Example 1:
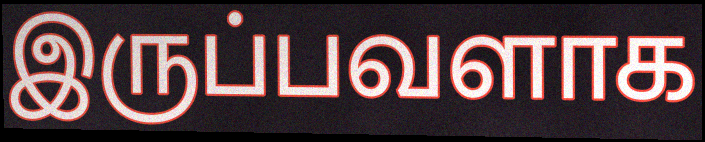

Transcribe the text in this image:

இருப்பவளாக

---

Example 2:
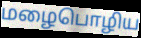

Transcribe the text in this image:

மழைபொழிய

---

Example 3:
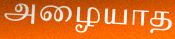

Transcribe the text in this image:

அழையாத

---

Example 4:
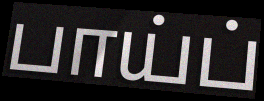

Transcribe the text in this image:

பாய்ப்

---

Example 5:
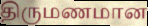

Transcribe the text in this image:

திருமணமான